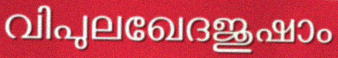
വിപുലഖേദജുഷാം